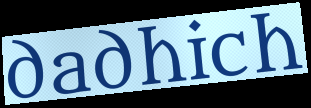
dadhich